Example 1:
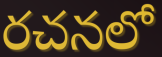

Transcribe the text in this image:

రచనలో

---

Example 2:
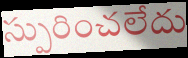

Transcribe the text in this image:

స్పురించలేదు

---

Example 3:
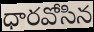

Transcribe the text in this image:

ధారవోసిన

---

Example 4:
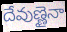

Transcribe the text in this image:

దేవుణ్ణైనా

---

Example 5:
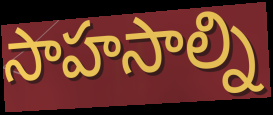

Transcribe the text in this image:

సాహసాల్ని